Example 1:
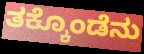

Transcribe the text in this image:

ತಕ್ಕೊಂಡೆನು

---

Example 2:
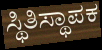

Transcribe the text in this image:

ಸ್ಥಿತಿಸ್ಥಾಪಕ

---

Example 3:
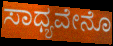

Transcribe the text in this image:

ಸಾಧ್ಯವೇನೊ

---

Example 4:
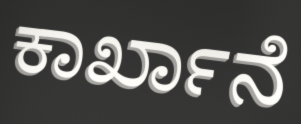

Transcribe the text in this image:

ಕಾರ್ಖಾನೆ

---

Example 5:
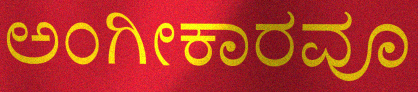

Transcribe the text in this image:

ಅಂಗೀಕಾರವೂ